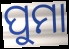
ପୁମା